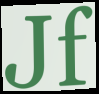
Jf